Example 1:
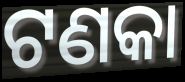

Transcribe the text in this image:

ଟଣକା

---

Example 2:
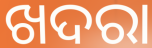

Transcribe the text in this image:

ଖଦରା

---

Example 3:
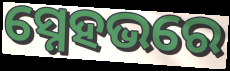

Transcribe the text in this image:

ସ୍ନେହଭରେ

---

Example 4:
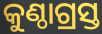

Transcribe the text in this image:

କୁଣ୍ଠାଗ୍ରସ୍ତ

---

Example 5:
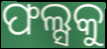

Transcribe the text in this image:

ଫଲ୍ସକୁ